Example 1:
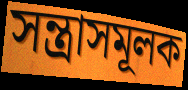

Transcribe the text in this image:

সন্ত্রাসমূলক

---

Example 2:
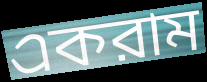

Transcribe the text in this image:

একরাম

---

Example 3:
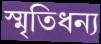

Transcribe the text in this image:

স্মৃতিধন্য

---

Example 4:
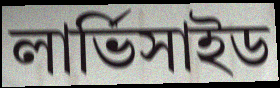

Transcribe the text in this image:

লার্ভিসাইড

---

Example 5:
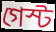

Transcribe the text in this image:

গেস্ট